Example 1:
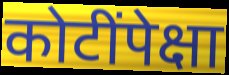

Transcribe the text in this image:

कोटींपेक्षा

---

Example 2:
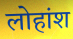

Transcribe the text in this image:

लोहांश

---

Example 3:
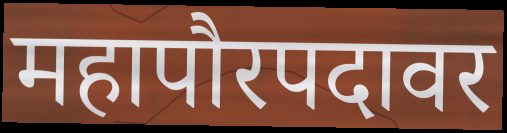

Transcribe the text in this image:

महापौरपदावर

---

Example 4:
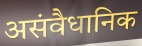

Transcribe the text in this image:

असंवैधानिक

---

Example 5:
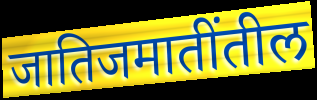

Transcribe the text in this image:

जातिजमातींतील